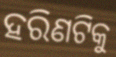
ହରିଣଟିକୁ